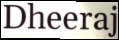
Dheeraj